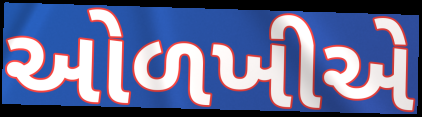
ઓળખીએ